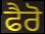
ਫੈਰੋ